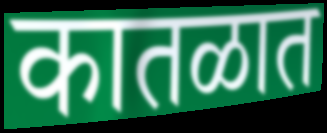
कातळात